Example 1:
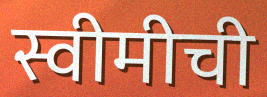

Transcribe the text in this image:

स्वीमीची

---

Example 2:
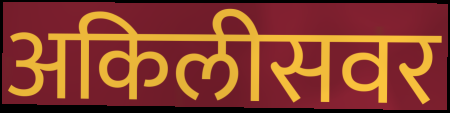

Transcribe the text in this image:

अकिलीसवर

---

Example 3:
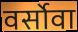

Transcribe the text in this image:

वर्सोवा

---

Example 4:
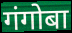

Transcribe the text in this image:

गंगोबा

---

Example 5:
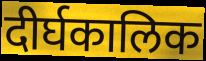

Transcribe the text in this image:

दीर्घकालिक